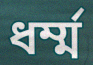
ধৰ্ম্ম